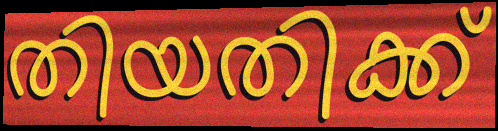
തിയതിക്ക്